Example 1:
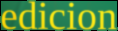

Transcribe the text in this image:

edicion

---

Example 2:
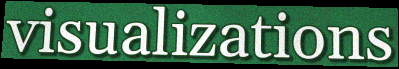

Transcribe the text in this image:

visualizations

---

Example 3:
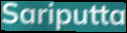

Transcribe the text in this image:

Sariputta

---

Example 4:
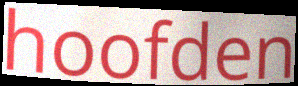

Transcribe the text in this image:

hoofden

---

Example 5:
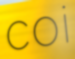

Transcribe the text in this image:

coi